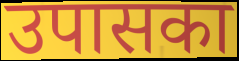
उपासका